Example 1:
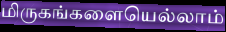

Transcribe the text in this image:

மிருகங்களையெல்லாம்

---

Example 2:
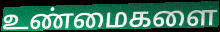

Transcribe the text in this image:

உண்மைகளை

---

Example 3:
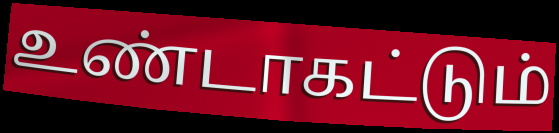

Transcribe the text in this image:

உண்டாகட்டும்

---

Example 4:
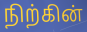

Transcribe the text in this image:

நிற்கின்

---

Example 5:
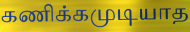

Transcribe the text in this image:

கணிக்கமுடியாத